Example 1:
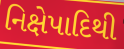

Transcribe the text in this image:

નિક્ષેપાદિથી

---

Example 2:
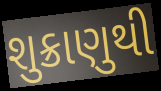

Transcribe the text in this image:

શુક્રાણુથી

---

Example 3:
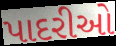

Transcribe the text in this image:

પાદરીઓ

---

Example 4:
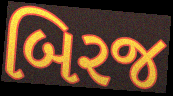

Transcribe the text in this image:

બિરજ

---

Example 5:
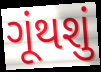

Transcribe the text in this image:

ગૂંથશું